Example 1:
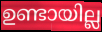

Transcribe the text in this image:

ഉണ്ടായില്ല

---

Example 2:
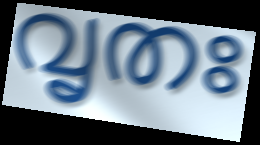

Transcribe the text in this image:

വൃതഃ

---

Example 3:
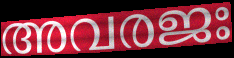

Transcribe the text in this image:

അവരജഃ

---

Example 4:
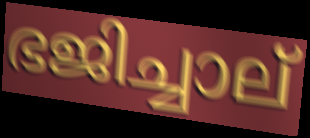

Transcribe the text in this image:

ഭജിച്ചാല്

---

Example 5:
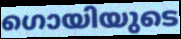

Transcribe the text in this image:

ഗൊയിയുടെ